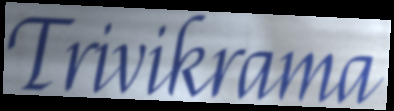
Trivikrama